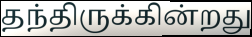
தந்திருக்கின்றது